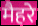
मैहरे